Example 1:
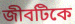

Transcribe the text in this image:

জীবটিকে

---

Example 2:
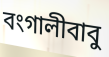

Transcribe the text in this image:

বংগালীবাবু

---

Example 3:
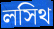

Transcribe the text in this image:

লসিথ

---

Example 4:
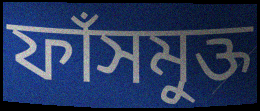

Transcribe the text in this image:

ফাঁসমুক্ত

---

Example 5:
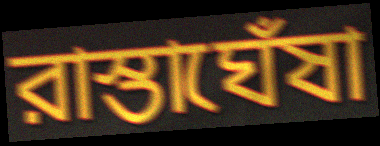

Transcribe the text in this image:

রাস্তাঘেঁষা